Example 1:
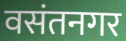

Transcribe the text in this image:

वसंतनगर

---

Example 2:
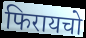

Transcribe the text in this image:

फिरायचो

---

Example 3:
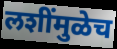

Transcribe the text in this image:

लशींमुळेच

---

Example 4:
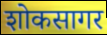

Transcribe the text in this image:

शोकसागर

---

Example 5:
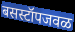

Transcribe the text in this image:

बसस्टॉपजवळ